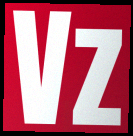
Vz